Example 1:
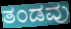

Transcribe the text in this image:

ತಂಡವು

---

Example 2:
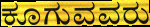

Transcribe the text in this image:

ಕೂಗುವವರು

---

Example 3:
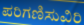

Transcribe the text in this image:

ಪರಿಗಣಿಸುವಿರಿ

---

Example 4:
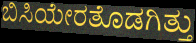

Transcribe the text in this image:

ಬಿಸಿಯೇರತೊಡಗಿತ್ತು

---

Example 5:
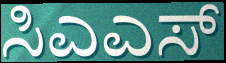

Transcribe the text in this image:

ಸಿಎಎಸ್